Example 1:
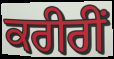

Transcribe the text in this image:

ਕਰੀਰੀਂ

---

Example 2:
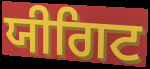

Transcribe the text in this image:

ਯੀਗਿਟ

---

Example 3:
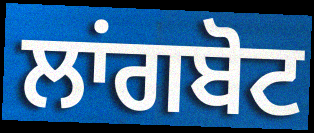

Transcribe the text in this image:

ਲਾਂਗਬੋਟ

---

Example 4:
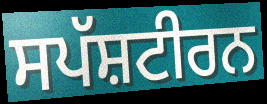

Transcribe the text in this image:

ਸਪੱਸ਼ਟੀਰਨ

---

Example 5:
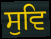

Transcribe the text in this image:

ਸੁਵਿ